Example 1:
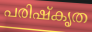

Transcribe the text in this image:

പരിഷ്കൃത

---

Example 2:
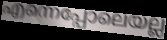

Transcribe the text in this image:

എന്നെപ്പോലെയല്ല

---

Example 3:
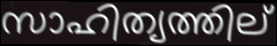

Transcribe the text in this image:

സാഹിത്യത്തില്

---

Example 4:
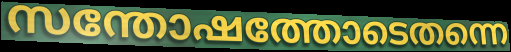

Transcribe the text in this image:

സന്തോഷത്തോടെതന്നെ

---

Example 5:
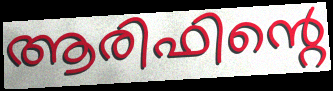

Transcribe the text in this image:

ആരിഫിന്റെ